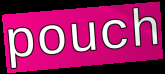
pouch